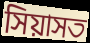
সিয়াসত